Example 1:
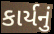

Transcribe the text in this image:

કાર્યનું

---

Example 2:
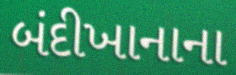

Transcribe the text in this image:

બંદીખાનાના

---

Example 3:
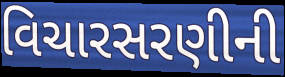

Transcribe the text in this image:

વિચારસરણીની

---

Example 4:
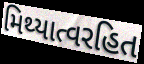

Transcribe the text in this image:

મિથ્યાત્વરહિત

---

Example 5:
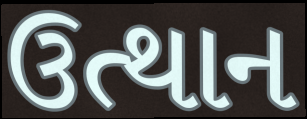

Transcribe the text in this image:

ઉત્થાન